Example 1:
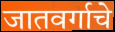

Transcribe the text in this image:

जातवर्गाचे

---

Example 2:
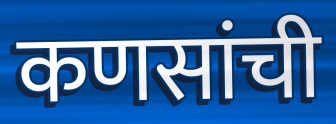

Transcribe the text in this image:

कणसांची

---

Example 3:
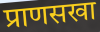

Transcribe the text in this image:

प्राणसखा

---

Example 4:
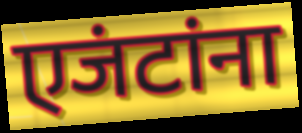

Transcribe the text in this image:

एजंटांना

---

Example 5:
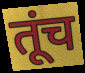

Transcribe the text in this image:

तूंच